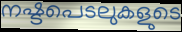
നഷ്ടപെടലുകളുടെ